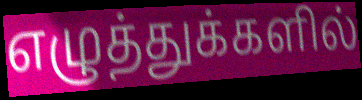
எழுத்துக்களில்